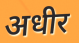
अधीर